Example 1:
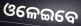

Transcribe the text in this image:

ଓଳେଇବେ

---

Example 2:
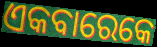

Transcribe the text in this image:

ଏକବାରେକେ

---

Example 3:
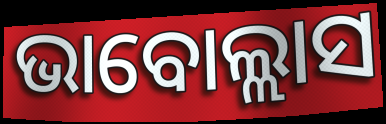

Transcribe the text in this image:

ଭାବୋଲ୍ଲାସ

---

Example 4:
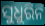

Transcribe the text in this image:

ସୁଧୁରିନି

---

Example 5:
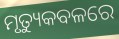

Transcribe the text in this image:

ମୃତ୍ୟୁକବଳରେ